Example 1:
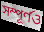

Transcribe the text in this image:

সম্পূর্ণও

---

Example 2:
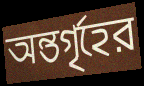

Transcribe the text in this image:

অন্তর্গৃহের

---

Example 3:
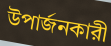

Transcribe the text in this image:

উপার্জনকারী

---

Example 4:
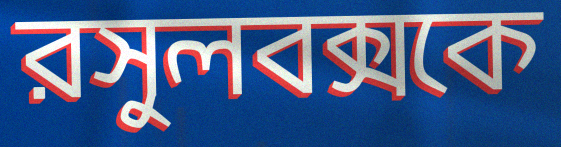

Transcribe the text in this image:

রসুলবক্সকে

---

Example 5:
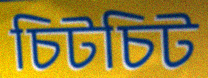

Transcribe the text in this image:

চিটচিট